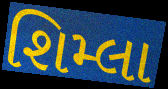
શિમ્લા